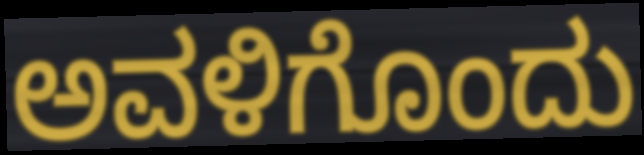
ಅವಳಿಗೊಂದು